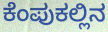
ಕೆಂಪುಕಲ್ಲಿನ